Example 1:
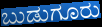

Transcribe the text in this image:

ಬುಡುಗೂರು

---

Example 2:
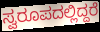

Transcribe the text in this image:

ಸ್ವರೂಪದಲ್ಲಿದ್ದರೆ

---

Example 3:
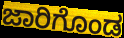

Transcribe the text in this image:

ಜಾರಿಗೊಂಡ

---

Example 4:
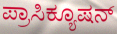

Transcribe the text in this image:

ಪ್ರಾಸಿಕ್ಯೂಷನ್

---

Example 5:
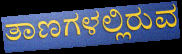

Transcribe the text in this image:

ತಾಣಗಳಲ್ಲಿರುವ